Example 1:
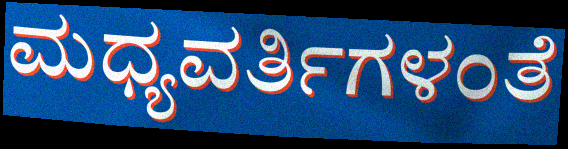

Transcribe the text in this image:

ಮಧ್ಯವರ್ತಿಗಳಂತೆ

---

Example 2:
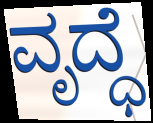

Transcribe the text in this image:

ವೃದ್ಧೆ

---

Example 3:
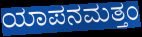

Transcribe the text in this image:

ಯಾಪನಮತ್ತಂ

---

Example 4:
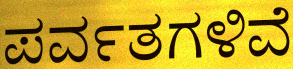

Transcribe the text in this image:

ಪರ್ವತಗಳಿವೆ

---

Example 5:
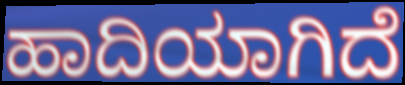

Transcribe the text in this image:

ಹಾದಿಯಾಗಿದೆ